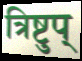
त्रिष्टुप्